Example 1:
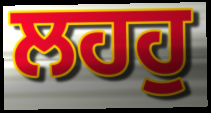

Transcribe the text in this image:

ਲਹਹੁ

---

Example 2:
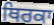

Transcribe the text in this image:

ਥਿਰਕਾ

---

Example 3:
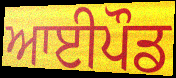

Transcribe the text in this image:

ਆਈਪੌਡ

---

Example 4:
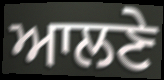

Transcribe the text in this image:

ਆਲਣੇ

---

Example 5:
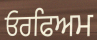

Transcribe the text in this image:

ਓਰਫਿਅਮ